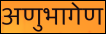
अणुभागेण